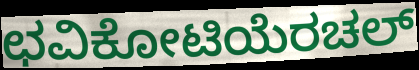
ಛವಿಕೋಟಿಯೆರಚಲ್